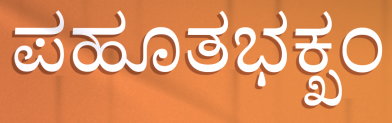
ಪಹೂತಭಕ್ಖಂ